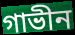
গাভীন